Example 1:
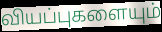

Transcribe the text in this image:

வியப்புகளையும்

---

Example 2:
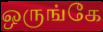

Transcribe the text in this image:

ஒருங்கே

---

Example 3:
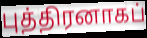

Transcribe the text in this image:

புத்திரனாகப்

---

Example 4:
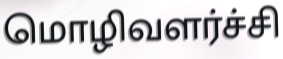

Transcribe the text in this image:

மொழிவளர்ச்சி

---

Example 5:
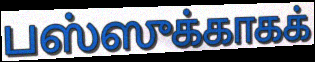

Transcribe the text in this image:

பஸ்ஸுக்காகக்